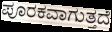
ಪೂರಕವಾಗುತ್ತದೆ